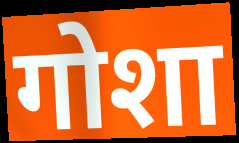
गोशा